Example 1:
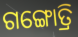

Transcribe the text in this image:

ଗଙ୍ଗୋତ୍ରି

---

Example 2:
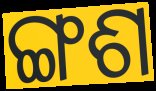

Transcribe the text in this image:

ଙ୍ଗଶ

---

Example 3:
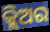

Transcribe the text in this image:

କ୍ଲିଅର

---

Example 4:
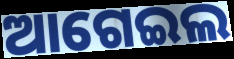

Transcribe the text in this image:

ଆଗେଇଲ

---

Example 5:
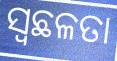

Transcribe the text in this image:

ସ୍ୱଛଳତା